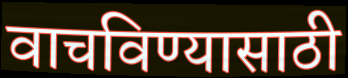
वाचविण्यासाठी